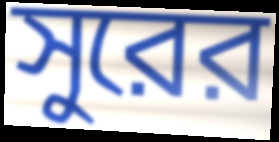
সুরের